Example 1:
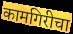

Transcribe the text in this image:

कामगिरीचा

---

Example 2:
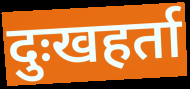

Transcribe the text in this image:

दुःखहर्ता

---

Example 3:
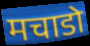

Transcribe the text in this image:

मचाडो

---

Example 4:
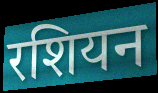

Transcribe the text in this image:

रशियन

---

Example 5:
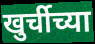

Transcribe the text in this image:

खुर्चीच्या